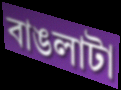
বাঙলাটা